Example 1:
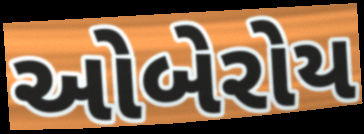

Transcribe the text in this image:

ઓબેરોય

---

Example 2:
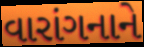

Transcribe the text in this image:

વારાંગનાને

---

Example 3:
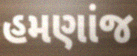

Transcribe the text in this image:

હમણાંજ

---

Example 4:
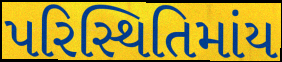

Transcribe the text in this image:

પરિસ્થિતિમાંય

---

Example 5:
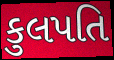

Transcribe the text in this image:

કુલપતિ